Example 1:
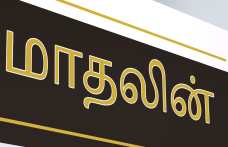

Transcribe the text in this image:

மாதலின்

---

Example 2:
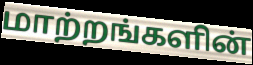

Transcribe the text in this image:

மாற்றங்களின்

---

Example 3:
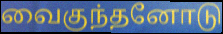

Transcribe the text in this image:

வைகுந்தனோடு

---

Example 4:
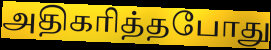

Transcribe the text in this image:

அதிகரித்தபோது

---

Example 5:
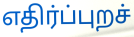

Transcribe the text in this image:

எதிர்ப்புறச்